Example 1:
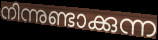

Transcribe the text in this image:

നിന്നുണ്ടാക്കുന്ന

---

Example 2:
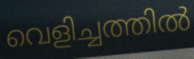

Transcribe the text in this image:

വെളിച്ചത്തിൽ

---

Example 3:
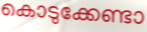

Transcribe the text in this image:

കൊടുക്കേണ്ടാ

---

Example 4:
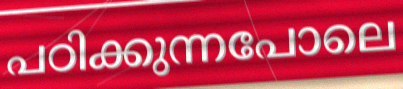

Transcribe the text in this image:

പഠിക്കുന്നപോലെ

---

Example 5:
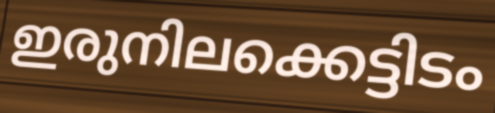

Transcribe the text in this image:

ഇരുനിലക്കെട്ടിടം